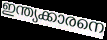
ഇന്ത്യക്കാരനെ